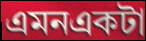
এমনএকটা